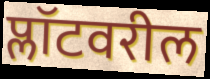
प्लॉटवरील